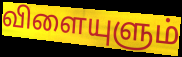
விளையுளும்